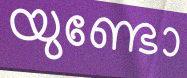
യുണ്ടോ